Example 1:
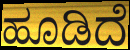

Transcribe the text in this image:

ಹೂಡಿದೆ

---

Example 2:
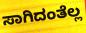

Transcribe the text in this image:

ಸಾಗಿದಂತೆಲ್ಲ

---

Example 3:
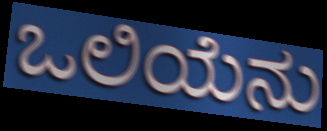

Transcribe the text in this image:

ಒಲಿಯೆನು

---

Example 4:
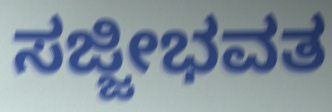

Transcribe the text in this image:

ಸಜ್ಜೀಭವತ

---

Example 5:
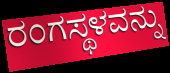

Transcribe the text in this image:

ರಂಗಸ್ಥಳವನ್ನು